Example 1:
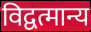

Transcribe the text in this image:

विद्वत्मान्य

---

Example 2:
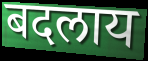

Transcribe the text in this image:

बदलाय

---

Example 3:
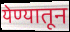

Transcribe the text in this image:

येण्यातून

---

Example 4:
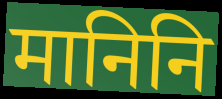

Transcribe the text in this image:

मानिनि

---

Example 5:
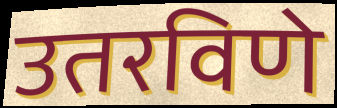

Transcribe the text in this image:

उतरविणे